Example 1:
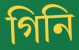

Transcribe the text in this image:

গিনি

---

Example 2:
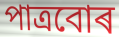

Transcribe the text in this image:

পাত্ৰবোৰ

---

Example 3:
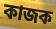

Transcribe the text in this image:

কাজক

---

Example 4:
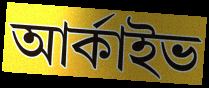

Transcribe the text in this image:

আৰ্কাইভ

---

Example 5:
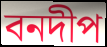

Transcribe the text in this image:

বনদীপ